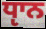
ਧੵਾਨ